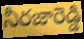
నీరజారెడ్డి